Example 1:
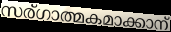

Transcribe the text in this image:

സര്ഗാത്മകമാക്കാന്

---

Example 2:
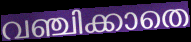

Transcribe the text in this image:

വഞ്ചിക്കാതെ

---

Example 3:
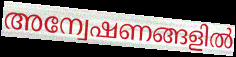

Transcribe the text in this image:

അന്വേഷണങ്ങളിൽ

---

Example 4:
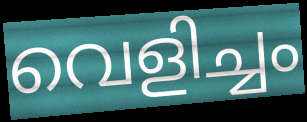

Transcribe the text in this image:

വെളിച്ചം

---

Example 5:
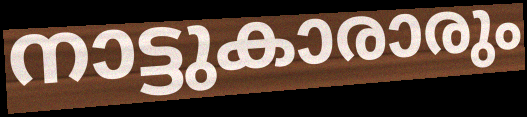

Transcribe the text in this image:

നാട്ടുകാരാരും